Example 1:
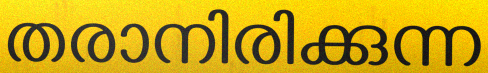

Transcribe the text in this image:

തരാനിരിക്കുന്ന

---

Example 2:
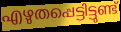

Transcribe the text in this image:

എഴുതപ്പെട്ടിട്ടുണ്ട്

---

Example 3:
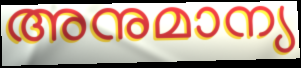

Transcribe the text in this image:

അനുമാന്യ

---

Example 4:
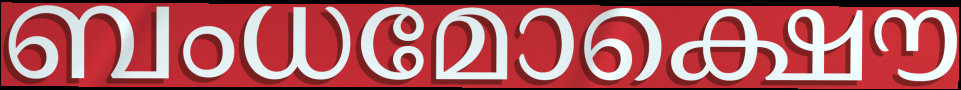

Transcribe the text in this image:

ബംധമോക്ഷൌ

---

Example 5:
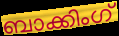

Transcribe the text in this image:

ബാക്കിംഗ്